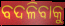
ବଦଳିବାକୁ